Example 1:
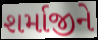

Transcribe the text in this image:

શર્માજીને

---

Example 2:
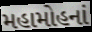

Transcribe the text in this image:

મહામોહનાં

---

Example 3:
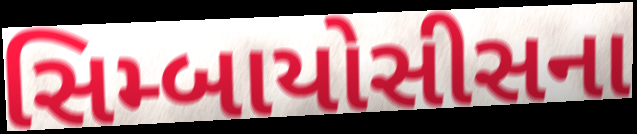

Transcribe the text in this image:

સિમ્બાયોસીસના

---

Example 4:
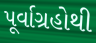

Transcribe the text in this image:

પૂર્વાગ્રહોથી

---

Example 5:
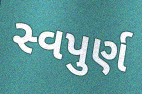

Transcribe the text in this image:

સ્વપુર્ણ